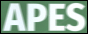
APES